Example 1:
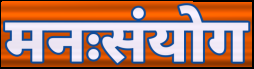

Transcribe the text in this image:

मनःसंयोग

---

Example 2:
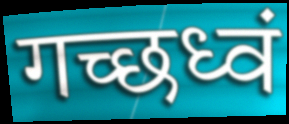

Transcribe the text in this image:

गच्छध्वं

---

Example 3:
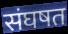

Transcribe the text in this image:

संघषत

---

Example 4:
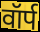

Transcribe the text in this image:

वॉर्प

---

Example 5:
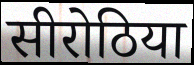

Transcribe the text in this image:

सीरोठिया